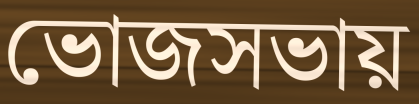
ভোজসভায়